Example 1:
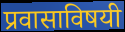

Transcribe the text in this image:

प्रवासाविषयी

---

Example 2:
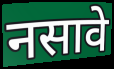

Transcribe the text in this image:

नसावे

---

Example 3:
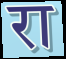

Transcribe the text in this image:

रा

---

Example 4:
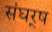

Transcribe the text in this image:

संघर्ष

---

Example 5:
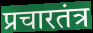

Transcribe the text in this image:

प्रचारतंत्र